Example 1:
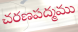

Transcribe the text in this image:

చరణపద్మము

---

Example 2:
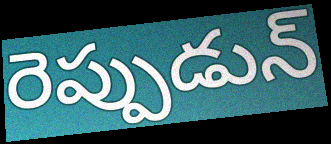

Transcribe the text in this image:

రెప్పుడున్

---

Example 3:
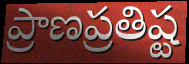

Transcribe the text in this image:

ప్రాణప్రతిష్ట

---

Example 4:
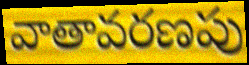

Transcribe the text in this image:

వాతావరణపు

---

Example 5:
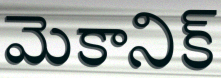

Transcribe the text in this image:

మెకానిక్